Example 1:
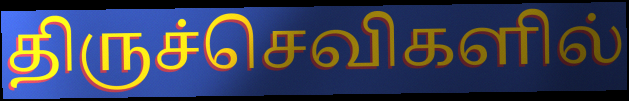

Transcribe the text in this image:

திருச்செவிகளில்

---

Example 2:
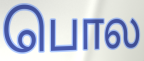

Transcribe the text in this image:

பொல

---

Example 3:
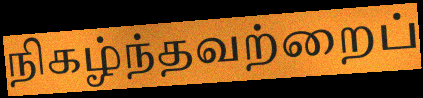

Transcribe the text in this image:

நிகழ்ந்தவற்றைப்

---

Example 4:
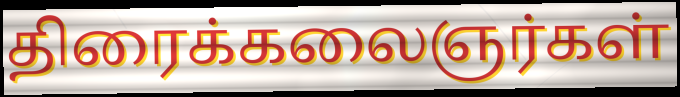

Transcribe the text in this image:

திரைக்கலைஞர்கள்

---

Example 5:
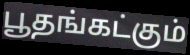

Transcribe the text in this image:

பூதங்கட்கும்